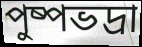
পুষ্পভদ্ৰা